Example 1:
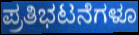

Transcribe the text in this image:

ಪ್ರತಿಭಟನೆಗಳೂ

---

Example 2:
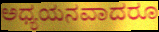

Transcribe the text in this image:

ಅಧ್ಯಯನವಾದರೂ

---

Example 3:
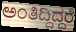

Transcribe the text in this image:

ಅಂತಿದ್ದಿದ್ದರೆ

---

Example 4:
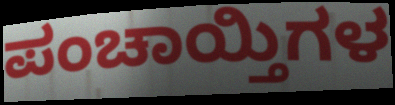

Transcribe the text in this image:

ಪಂಚಾಯ್ತಿಗಳ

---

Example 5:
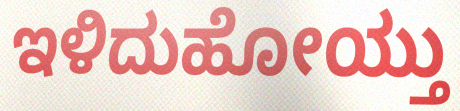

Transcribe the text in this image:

ಇಳಿದುಹೋಯ್ತು